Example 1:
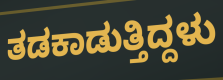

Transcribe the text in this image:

ತಡಕಾಡುತ್ತಿದ್ದಳು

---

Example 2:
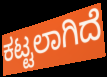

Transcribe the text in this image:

ಕಟ್ಟಲಾಗಿದೆ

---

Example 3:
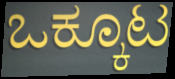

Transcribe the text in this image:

ಒಕ್ಕೂಟ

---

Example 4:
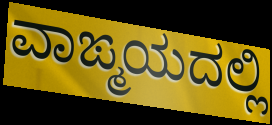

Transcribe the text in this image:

ವಾಙ್ಮಯದಲ್ಲಿ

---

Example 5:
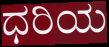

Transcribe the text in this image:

ಧರಿಯ